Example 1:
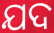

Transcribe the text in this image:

ଯଦ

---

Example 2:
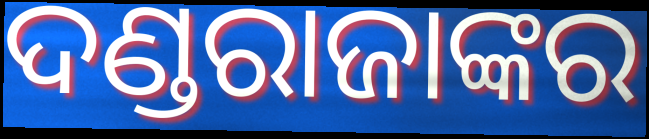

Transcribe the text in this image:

ଦଣ୍ଡରାଜାଙ୍କର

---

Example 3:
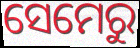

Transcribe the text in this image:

ସେମେରୁ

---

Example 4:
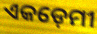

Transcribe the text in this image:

ଏକଡ଼େମୀ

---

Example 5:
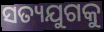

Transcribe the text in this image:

ସତ୍ୟଯୁଗକୁ